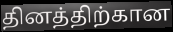
தினத்திற்கான